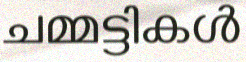
ചമ്മട്ടികൾ